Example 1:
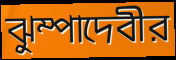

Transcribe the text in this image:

ঝুম্পাদেবীর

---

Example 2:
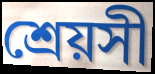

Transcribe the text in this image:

শ্রেয়সী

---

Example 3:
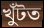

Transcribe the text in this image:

খুঁটত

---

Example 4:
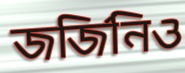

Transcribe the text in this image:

জর্জিনিও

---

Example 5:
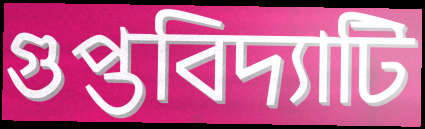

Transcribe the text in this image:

গুপ্তবিদ্যাটি